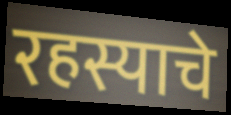
रहस्याचे